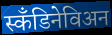
स्कॅंडिनेविअन